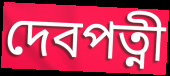
দেবপত্নী